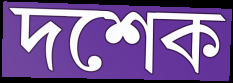
দশেক